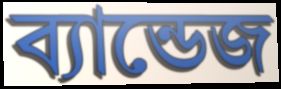
ব্যান্ডেজ